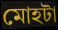
মোহটা